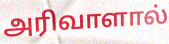
அரிவாளால்